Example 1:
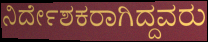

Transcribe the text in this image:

ನಿರ್ದೇಶಕರಾಗಿದ್ದವರು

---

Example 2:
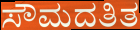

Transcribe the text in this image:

ಸೌಮದತಿತ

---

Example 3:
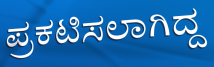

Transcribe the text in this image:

ಪ್ರಕಟಿಸಲಾಗಿದ್ದ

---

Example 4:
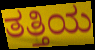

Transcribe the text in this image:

ತತ್ತಿಯ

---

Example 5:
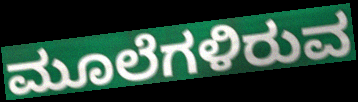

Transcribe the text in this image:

ಮೂಲೆಗಳಿರುವ